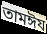
তামঈয